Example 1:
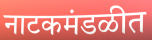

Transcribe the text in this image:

नाटकमंडळीत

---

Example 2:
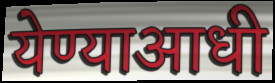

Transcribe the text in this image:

येण्याआधी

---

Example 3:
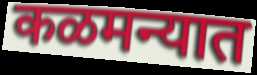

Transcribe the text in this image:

कळमन्यात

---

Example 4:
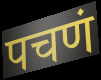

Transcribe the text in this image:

पचणं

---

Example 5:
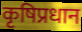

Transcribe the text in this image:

कृषिप्रधान